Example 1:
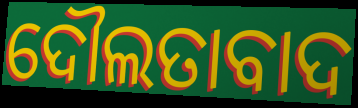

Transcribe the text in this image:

ଦୌଲତାବାଦ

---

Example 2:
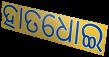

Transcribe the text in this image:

ହାତଧୋଇ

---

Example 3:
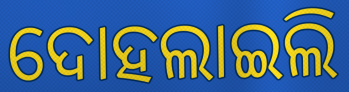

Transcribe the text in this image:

ଦୋହଲାଇଲି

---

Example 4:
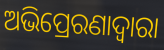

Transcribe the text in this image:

ଅଭିପ୍ରେରଣାଦ୍ୱାରା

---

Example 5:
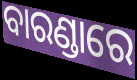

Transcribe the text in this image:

ବାରଣ୍ଡାରେ